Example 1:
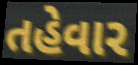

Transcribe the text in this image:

તહેવાર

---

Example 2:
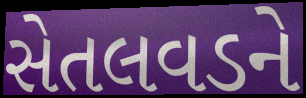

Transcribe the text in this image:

સેતલવડને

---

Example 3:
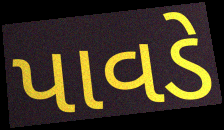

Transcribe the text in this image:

પાવડે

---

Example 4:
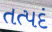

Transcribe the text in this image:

તત્પદં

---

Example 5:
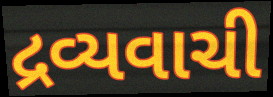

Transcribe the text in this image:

દ્રવ્યવાચી